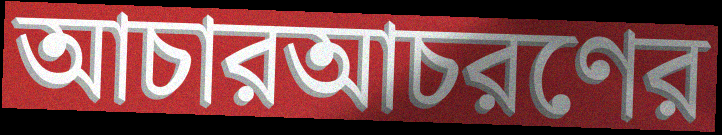
আচারআচরণের